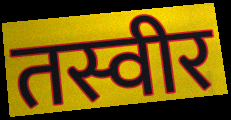
तस्‍वीर